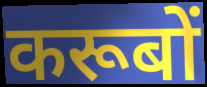
करूबों